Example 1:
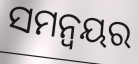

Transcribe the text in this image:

ସମନ୍ଵୟର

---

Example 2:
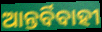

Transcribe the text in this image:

ଆନ୍ତର୍ବିବାହୀ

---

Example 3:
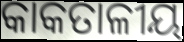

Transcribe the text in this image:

କାକତାଳୀୟ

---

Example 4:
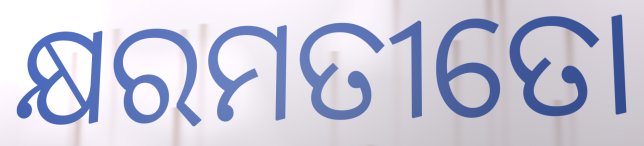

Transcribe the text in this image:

କ୍ଷରମତୀତୋ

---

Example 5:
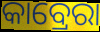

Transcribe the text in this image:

କାବ୍ରେରା